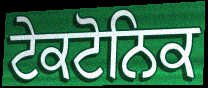
ਟੇਕਟੋਨਿਕ